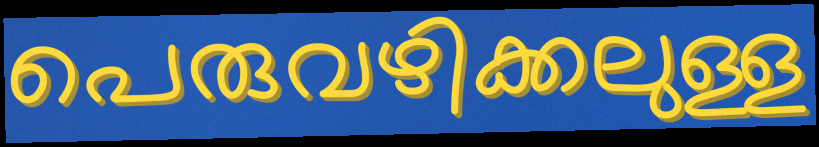
പെരുവഴിക്കലുള്ള